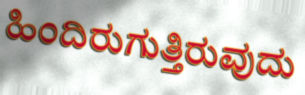
ಹಿಂದಿರುಗುತ್ತಿರುವುದು